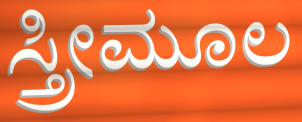
ಸ್ತ್ರೀಮೂಲ